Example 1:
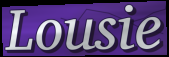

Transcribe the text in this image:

Lousie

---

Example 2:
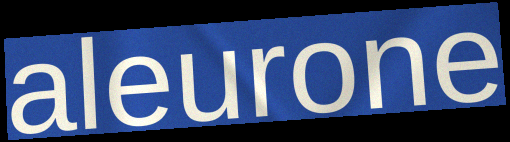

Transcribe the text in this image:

aleurone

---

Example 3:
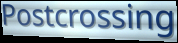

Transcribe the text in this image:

Postcrossing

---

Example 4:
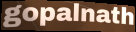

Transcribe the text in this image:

gopalnath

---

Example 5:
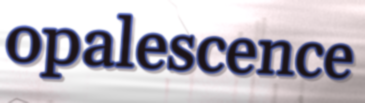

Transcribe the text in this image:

opalescence